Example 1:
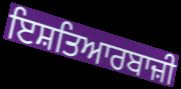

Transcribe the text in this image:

ਇਸ਼ਤਿਆਰਬਾਜ਼ੀ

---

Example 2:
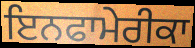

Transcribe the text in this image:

ਇਨਫਾਮੇਰੀਕਾ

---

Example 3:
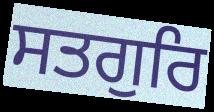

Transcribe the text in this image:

ਸਤਗੁਰਿ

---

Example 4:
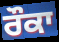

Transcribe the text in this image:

ਰੌਕਾ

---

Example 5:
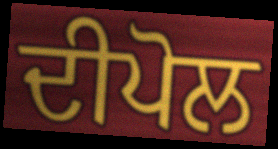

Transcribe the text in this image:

ਦੀਪੋਲ